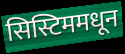
सिस्टिममधून